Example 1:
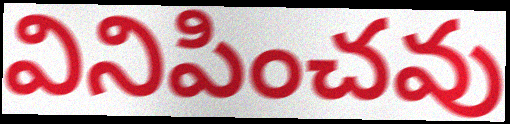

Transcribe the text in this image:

వినిపించవు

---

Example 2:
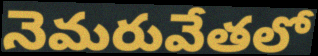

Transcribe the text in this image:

నెమరువేతలో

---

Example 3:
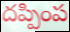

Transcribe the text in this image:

దప్పింప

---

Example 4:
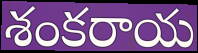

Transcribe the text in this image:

శంకరాయ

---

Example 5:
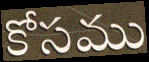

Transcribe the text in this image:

కోసము